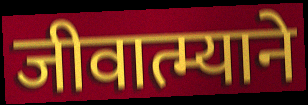
जीवात्म्याने